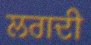
ਲਗਦੀ